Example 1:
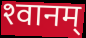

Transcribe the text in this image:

श्वानम्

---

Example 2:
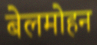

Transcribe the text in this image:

बेलमोहन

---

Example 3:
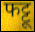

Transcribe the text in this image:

फट्टू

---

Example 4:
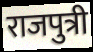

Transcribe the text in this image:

राजपुत्री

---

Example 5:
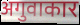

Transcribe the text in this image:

अगुवाकार